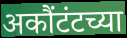
अकौंटंटच्या